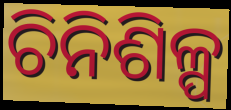
ଚିନିଶିଳ୍ପ